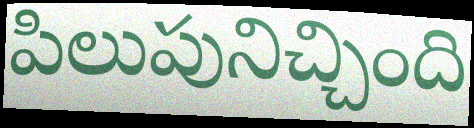
పిలుపునిచ్చింది